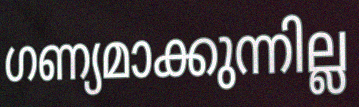
ഗണ്യമാക്കുന്നില്ല